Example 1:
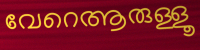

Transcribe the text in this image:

വേറെആരുള്ളൂ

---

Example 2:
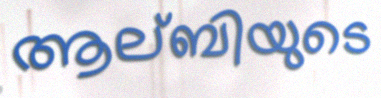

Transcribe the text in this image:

ആല്ബിയുടെ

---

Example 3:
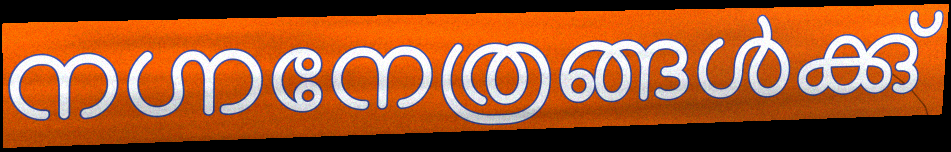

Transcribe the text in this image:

നഗ്നനേത്രങ്ങൾക്കു്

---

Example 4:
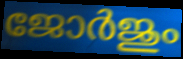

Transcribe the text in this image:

ജോർജും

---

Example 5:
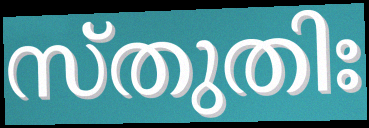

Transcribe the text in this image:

സ്തുതിഃ